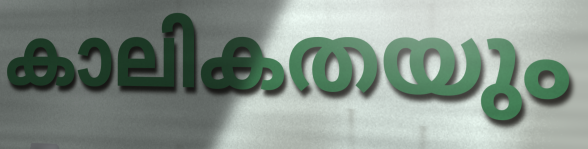
കാലികതയും